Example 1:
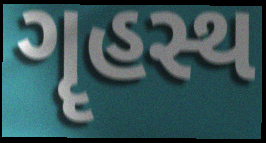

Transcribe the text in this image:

ગૄહસ્થ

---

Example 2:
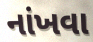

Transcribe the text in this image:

નાંખવા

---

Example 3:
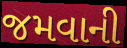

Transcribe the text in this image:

જમવાની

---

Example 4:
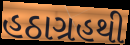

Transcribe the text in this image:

હઠાગ્રહથી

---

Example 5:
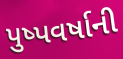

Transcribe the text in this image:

પુષ્પવર્ષાની